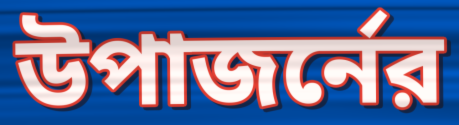
উপাজর্নের